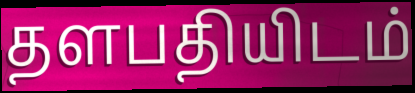
தளபதியிடம்